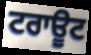
ਟਰਾਊਟ